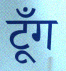
टूँग